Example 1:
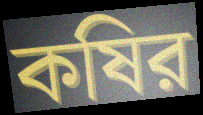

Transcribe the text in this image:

কষির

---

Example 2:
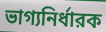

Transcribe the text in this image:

ভাগ্যনির্ধারক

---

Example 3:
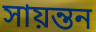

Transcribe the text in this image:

সায়ন্তন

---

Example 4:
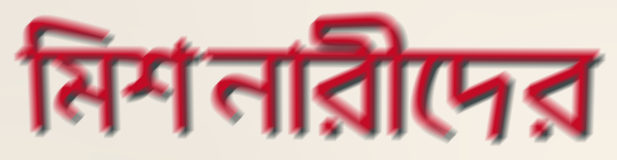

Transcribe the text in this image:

মিশনারীদের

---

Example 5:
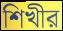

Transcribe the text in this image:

শিখীর